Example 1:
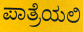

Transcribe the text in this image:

ಪಾತ್ರೆಯಲಿ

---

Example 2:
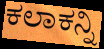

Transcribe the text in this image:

ಕಲಾಕನ್ನಿ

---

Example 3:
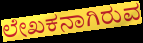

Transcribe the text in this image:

ಲೇಖಕನಾಗಿರುವ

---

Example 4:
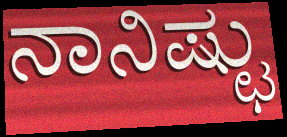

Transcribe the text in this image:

ನಾನಿಷ್ಟು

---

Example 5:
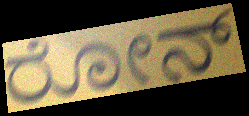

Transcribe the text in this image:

ರೋನ್